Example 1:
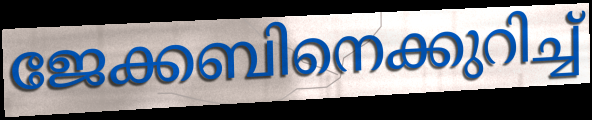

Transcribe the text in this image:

ജേക്കബിനെക്കുറിച്ച്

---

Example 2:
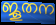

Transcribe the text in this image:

ജൂതന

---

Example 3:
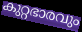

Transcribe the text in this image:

കുറ്റഭാരവും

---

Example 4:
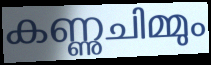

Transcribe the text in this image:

കണ്ണുചിമ്മും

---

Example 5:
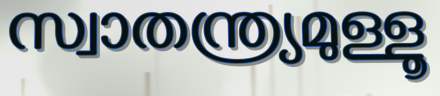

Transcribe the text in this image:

സ്വാതന്ത്ര്യമുള്ളൂ